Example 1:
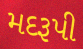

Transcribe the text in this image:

મદરૂપી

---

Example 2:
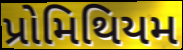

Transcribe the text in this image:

પ્રોમિથિયમ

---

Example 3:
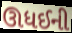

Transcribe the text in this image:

ઊધઈની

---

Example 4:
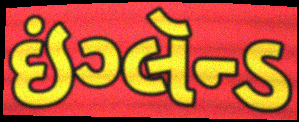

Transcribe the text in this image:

ઇંગ્લૅન્ડ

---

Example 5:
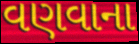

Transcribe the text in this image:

વણવાના